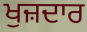
ਖੁਜ਼ਦਾਰ